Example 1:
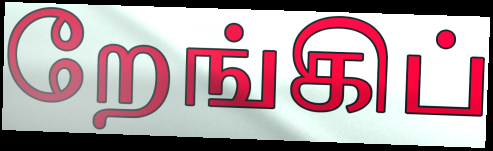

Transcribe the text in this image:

றேங்கிப்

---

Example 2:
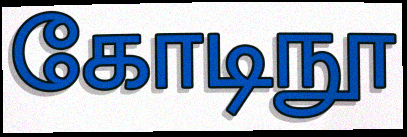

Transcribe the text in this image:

கோடிநூ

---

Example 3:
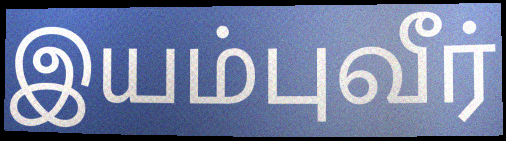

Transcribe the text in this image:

இயம்புவீர்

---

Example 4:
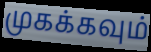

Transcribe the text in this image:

முகக்கவும்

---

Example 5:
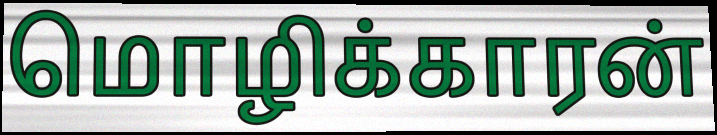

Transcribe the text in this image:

மொழிக்காரன்